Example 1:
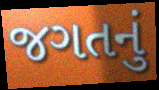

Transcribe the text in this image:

જગતનું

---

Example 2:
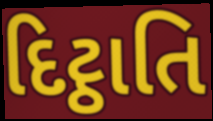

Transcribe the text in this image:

દિટ્ઠાતિ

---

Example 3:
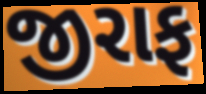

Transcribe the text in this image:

જીરાફ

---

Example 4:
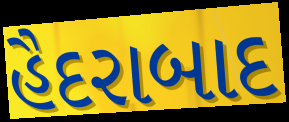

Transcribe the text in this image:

હૈદરાબાદ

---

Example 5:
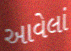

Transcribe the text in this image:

આવેલાં